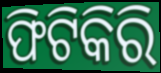
ଫିଟିକିରି